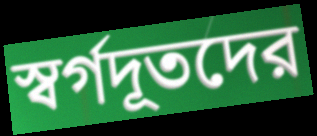
স্বর্গদূতদের